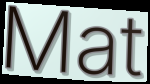
Mat